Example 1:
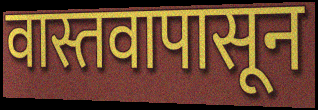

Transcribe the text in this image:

वास्तवापासून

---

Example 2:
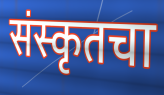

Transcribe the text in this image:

संस्कृतचा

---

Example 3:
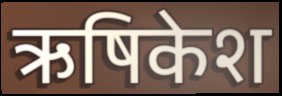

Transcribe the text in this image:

ऋषिकेश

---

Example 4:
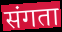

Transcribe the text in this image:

संगता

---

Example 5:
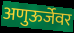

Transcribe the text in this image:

अणुऊर्जेवर